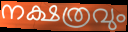
നക്ഷത്രവും